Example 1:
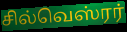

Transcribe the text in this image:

சில்வெஸ்ரர்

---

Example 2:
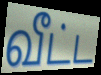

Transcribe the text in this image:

வீட்ட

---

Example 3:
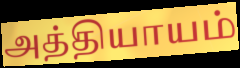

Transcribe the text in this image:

அத்தியாயம்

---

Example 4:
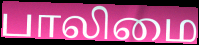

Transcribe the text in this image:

பாலிமை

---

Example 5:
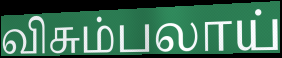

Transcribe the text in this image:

விசும்பலாய்